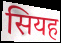
सियह